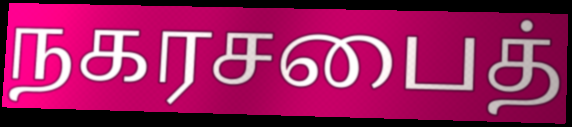
நகரசபைத்